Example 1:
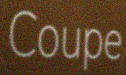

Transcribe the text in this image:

Coupe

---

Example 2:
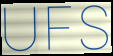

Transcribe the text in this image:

UFS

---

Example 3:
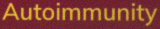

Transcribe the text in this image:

Autoimmunity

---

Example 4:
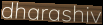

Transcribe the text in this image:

dharashiv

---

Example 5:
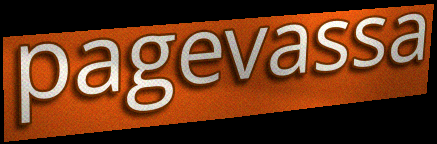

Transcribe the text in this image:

pagevassa